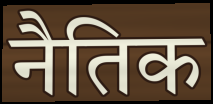
नैतिक